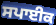
ਸਪਾਈਕ